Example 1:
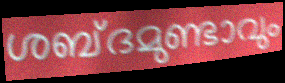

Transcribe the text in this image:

ശബ്ദമുണ്ടാവും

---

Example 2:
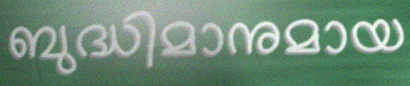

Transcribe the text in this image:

ബുദ്ധിമാനുമായ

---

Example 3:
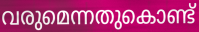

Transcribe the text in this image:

വരുമെന്നതുകൊണ്ട്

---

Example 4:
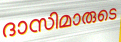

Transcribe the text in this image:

ദാസിമാരുടെ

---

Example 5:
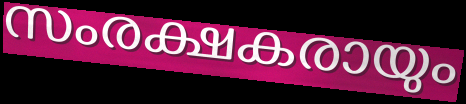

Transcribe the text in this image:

സംരക്ഷകരായും